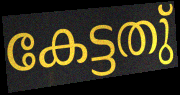
കേട്ടതു്